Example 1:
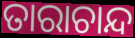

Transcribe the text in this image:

ତାରାଚାନ୍ଦ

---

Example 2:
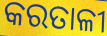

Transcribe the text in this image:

କରତାଳୀ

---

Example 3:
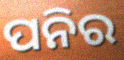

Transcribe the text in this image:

ପନିର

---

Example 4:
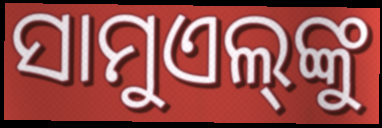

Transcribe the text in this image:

ସାମୁଏଲ୍‌ଙ୍କୁ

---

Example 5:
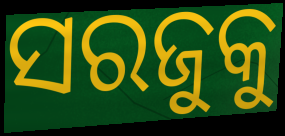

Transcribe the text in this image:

ସରଜୁକୁ